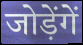
जोड़ेंगें